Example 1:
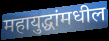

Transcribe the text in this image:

महायुद्धांमधील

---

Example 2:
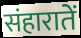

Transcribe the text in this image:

संहारातें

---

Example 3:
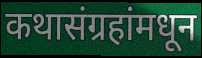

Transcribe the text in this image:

कथासंग्रहांमधून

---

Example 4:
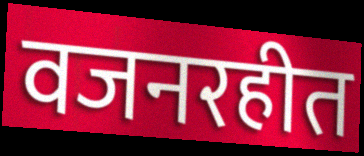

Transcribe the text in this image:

वजनरहीत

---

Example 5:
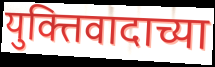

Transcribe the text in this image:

युक्तिवादाच्या